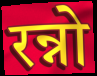
रन्नो